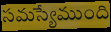
సమస్యేముంది